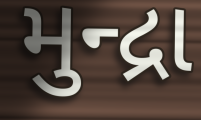
મુન્દ્રા